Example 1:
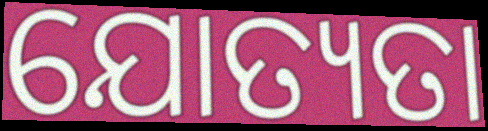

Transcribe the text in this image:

ଯୋତ୍ୟତା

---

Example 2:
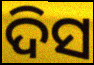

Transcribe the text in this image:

ଦିସ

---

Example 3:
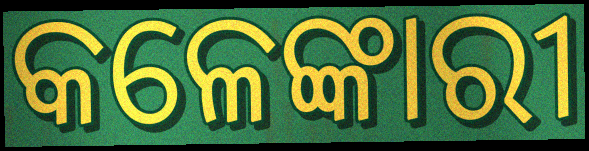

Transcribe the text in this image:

କଳେଙ୍କାରୀ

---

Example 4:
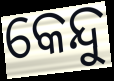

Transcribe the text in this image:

କେନ୍ଦୁ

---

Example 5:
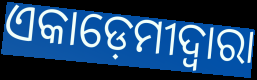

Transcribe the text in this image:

ଏକାଡ଼େମୀଦ୍ଵାରା